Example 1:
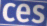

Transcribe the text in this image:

ces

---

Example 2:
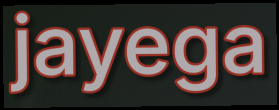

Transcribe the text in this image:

jayega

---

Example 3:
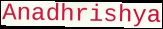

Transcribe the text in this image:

Anadhrishya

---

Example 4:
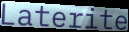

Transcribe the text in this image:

Laterite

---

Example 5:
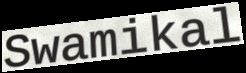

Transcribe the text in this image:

Swamikal